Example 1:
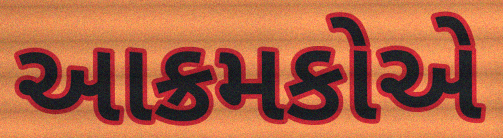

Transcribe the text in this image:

આક્રમકોએ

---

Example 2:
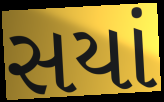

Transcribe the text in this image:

સયાં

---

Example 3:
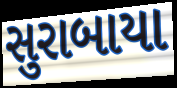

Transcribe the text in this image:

સુરાબાયા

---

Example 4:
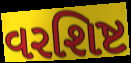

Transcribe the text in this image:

વરશિષ્ટ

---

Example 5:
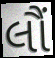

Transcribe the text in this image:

લૌં